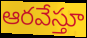
ఆరవేస్తూ